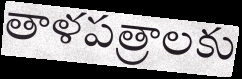
తాళపత్రాలకు